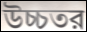
উচ্চতর